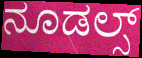
ನೂಡಲ್ಸ್